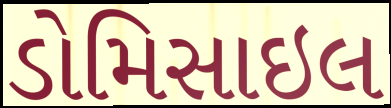
ડોમિસાઇલ